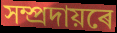
সম্প্ৰদায়ৰে